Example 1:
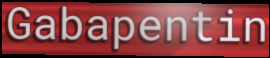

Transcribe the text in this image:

Gabapentin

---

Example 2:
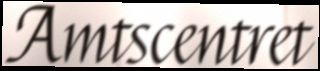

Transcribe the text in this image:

Amtscentret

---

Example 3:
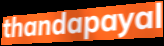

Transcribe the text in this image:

thandapayal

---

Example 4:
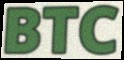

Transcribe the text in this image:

BTC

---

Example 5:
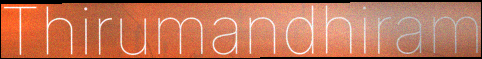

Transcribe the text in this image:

Thirumandhiram